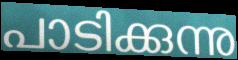
പാടിക്കുന്നു